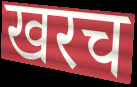
खरच